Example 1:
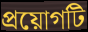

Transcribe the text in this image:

প্রয়োগটি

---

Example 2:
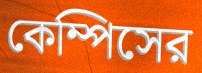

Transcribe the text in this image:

কেম্পিসের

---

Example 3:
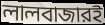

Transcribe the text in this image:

লালবাজারই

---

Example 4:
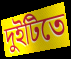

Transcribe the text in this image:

দুইটিতে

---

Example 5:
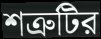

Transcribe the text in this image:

শত্রুটির